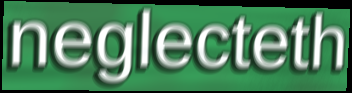
neglecteth